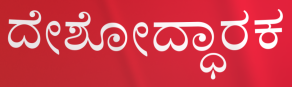
ದೇಶೋದ್ಧಾರಕ